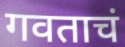
गवताचं